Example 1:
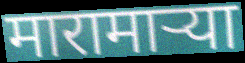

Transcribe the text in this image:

मारामार्‍या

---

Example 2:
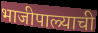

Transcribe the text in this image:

भाजीपाल्याची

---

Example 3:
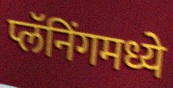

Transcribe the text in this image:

प्लॅनिंगमध्ये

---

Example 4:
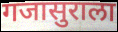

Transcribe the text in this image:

गजासुराला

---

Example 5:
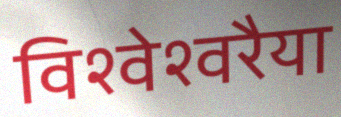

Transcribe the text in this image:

विश्वेश्वरैया